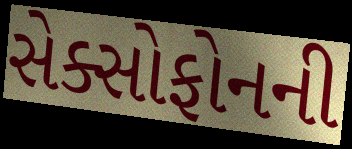
સેક્સોફોનની